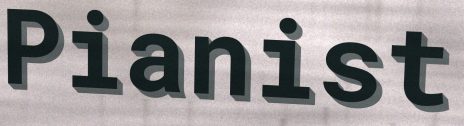
Pianist